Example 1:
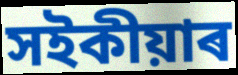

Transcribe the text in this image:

সইকীয়াৰ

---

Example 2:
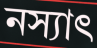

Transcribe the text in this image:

নস্যাৎ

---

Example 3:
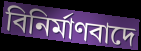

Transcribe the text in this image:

বিনিৰ্মাণবাদে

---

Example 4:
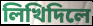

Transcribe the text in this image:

লিখিদিলে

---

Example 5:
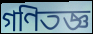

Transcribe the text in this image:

গণিতজ্ঞ